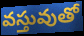
వస్తువుతో